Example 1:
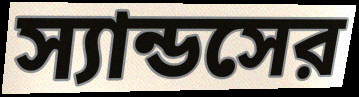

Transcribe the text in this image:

স্যান্ডসের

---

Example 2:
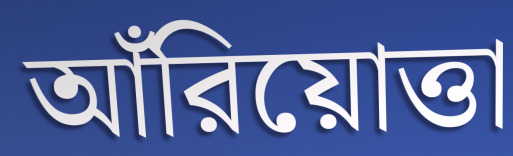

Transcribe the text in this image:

আঁরিয়োত্তা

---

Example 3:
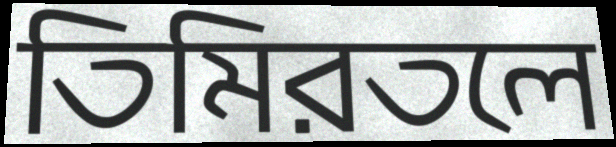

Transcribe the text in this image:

তিমিরতলে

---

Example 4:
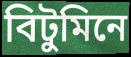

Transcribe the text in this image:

বিটুমিনে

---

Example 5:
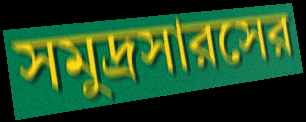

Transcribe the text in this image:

সমুদ্রসারসের